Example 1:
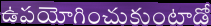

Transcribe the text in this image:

ఉపయోగించుకుంటాడో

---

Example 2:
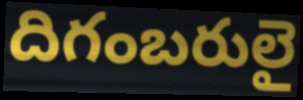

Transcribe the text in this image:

దిగంబరులై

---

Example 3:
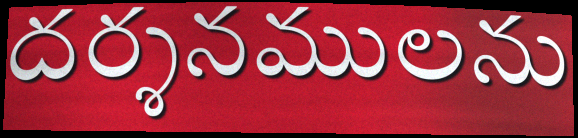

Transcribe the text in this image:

దర్శనములను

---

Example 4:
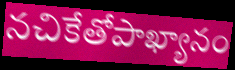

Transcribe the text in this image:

నచికేతోపాఖ్యానం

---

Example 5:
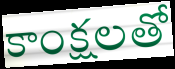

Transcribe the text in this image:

కాంక్షలతో